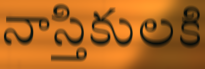
నాస్తికులకి